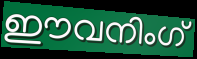
ഈവനിംഗ്